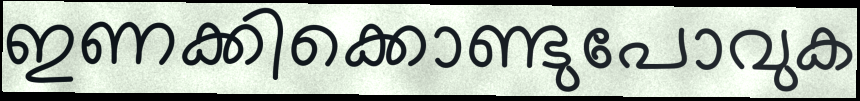
ഇണക്കിക്കൊണ്ടുപോവുക